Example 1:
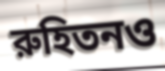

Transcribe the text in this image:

রুহিতনও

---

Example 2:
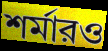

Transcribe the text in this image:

শর্মারও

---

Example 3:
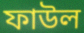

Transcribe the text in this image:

ফাউল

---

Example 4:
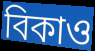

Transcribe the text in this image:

বিকাও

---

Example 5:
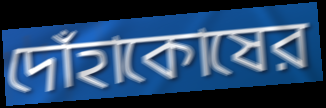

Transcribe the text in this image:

দোঁহাকোষের